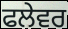
ਫਲੇਵਰ